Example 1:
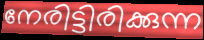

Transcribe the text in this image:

നേരിട്ടിരിക്കുന്ന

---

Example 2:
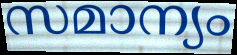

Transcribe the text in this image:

സമാന്യം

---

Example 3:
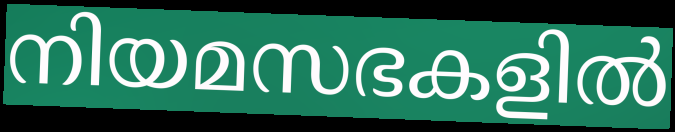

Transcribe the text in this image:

നിയമസഭകളിൽ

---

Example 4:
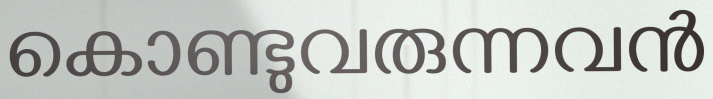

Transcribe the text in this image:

കൊണ്ടുവരുന്നവൻ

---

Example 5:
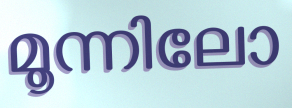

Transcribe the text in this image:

മൂന്നിലോ